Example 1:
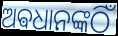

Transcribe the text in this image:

ଅଵଧାନଙ୍କଠିଁ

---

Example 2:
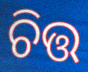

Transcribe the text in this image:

ଚିତ୍ତ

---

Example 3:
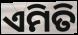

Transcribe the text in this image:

ଏମିତି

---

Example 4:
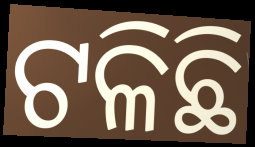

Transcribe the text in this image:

ଟଳିଛି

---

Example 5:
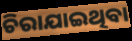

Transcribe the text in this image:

ଚିରାଯାଇଥିବା